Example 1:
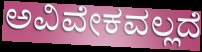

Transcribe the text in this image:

ಅವಿವೇಕವಲ್ಲದೆ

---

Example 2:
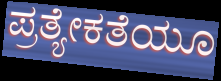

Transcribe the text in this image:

ಪ್ರತ್ಯೇಕತೆಯೂ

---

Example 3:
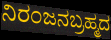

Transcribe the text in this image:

ನಿರಂಜನಬ್ರಹ್ಮದ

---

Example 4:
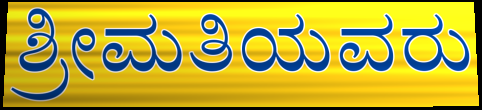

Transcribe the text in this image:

ಶ್ರೀಮತಿಯವರು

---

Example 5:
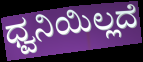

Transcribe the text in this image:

ಧ್ವನಿಯಿಲ್ಲದೆ